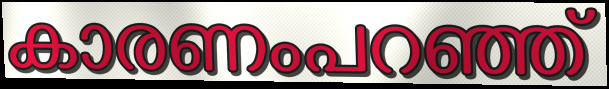
കാരണംപറഞ്ഞ്